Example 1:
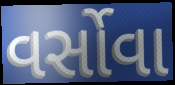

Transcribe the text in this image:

વર્સોવા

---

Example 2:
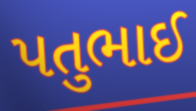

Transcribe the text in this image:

પતુભાઈ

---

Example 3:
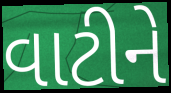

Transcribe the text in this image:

વાટીને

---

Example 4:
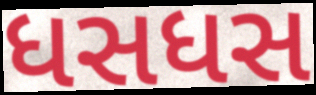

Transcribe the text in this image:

ધસધસ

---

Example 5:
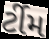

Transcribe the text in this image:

ર્ટીમ